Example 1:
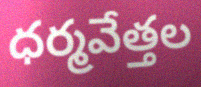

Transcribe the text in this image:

ధర్మవేత్తల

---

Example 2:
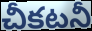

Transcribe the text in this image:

చీకటనీ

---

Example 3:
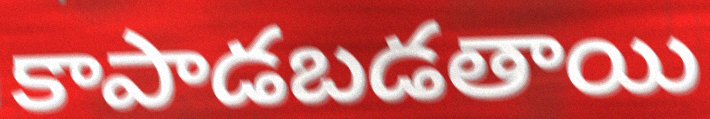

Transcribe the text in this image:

కాపాడబడతాయి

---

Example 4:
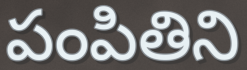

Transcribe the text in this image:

పంపితిని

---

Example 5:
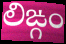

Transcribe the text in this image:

లిఙ్గం